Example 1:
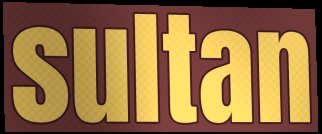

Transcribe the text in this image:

sultan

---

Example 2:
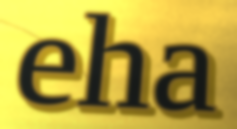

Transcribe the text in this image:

eha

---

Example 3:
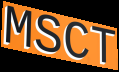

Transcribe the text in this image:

MSCT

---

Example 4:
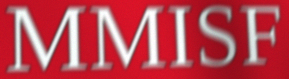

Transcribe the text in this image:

MMISF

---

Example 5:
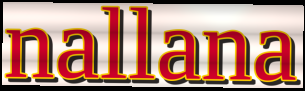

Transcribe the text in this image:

nallana